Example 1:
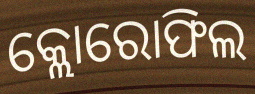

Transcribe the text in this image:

କ୍ଲୋରୋଫିଲ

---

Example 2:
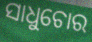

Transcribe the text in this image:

ସାଧୁଚୋର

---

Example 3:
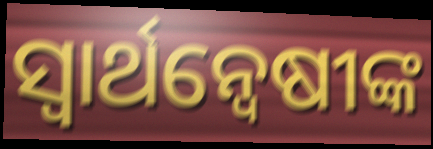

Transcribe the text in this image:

ସ୍ୱାର୍ଥନ୍ୱେଷୀଙ୍କ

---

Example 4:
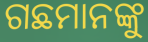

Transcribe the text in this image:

ଗଛମାନଙ୍କୁ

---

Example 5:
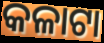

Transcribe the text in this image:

କଳାଟା